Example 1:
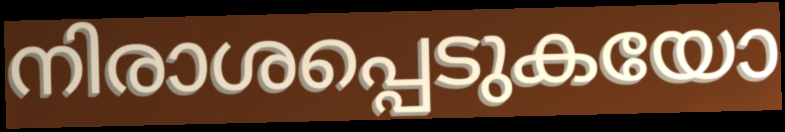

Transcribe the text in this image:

നിരാശപ്പെടുകയോ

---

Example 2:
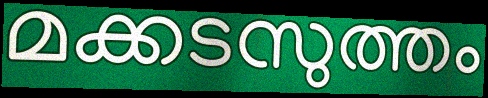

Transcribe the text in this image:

മക്കടസുത്തം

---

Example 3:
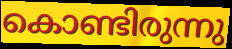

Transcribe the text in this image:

കൊണ്ടിരുന്നു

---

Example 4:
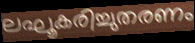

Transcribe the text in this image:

ലഘൂകരിച്ചുതരണം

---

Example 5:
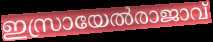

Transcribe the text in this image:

ഇസ്രായേൽരാജാവ്